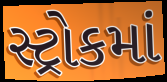
સ્ટ્રોકમાં